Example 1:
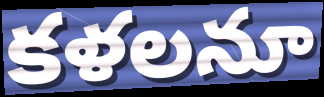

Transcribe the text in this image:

కళలనూ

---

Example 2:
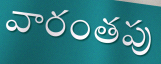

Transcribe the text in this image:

వారంతపు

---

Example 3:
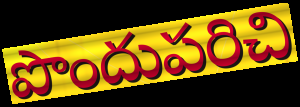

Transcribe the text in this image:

పొందుపరిచి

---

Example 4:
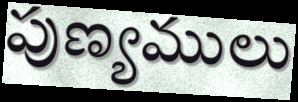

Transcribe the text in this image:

పుణ్యములు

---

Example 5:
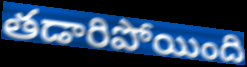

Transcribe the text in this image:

తడారిపోయింది